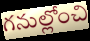
గనుల్లోంచి